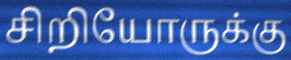
சிறியோருக்கு